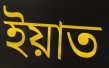
ইয়াত